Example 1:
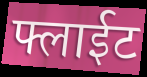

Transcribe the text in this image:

फ्लाईट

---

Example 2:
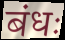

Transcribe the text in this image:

बंधः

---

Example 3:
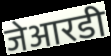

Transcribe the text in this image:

जेआरडी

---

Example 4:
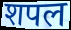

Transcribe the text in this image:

शपल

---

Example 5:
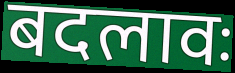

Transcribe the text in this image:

बदलावः